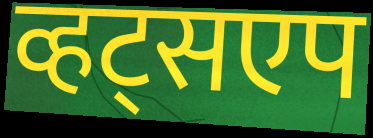
व्हट्सएप